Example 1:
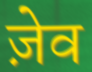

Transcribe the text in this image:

ज़ेव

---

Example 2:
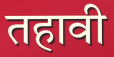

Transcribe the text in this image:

तहावी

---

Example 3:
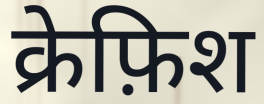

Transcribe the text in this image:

क्रेफ़िश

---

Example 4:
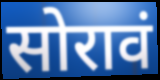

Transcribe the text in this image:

सोरावं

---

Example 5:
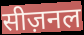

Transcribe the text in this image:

सीज़नल